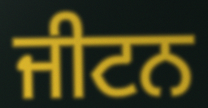
ਜੀਟਨ